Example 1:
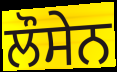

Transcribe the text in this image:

ਲੌਸੇਨ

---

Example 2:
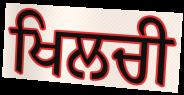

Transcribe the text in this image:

ਖਿਲਚੀ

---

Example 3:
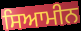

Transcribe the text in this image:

ਸਿਆਮੀਨ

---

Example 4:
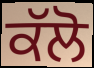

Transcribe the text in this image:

ਕੱਲੋ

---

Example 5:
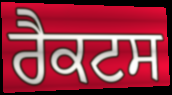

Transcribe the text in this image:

ਰੈਕਟਸ